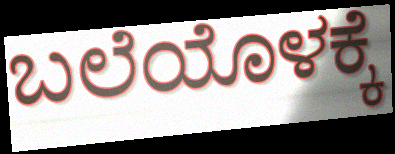
ಬಲೆಯೊಳಕ್ಕೆ